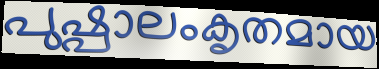
പുഷ്പാലംകൃതമായ